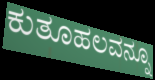
ಕುತೂಹಲವನ್ನೂ